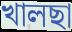
খালছা